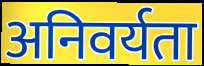
अनिवर्यता